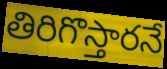
తిరిగొస్తారనే